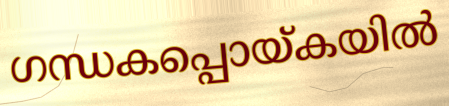
ഗന്ധകപ്പൊയ്കയിൽ